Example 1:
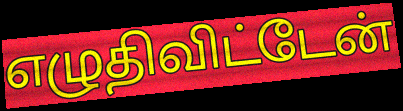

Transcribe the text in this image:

எழுதிவிட்டேன்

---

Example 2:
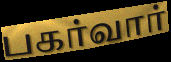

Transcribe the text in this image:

பகர்வார்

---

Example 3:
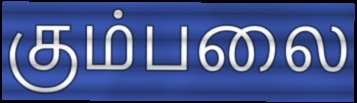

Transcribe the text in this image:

கும்பலை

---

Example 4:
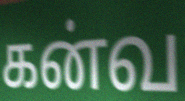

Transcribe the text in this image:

கன்வ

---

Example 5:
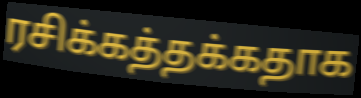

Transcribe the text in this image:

ரசிக்கத்தக்கதாக